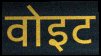
वोइट